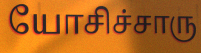
யோசிச்சாரு